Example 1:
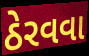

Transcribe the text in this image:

ઠેરવવા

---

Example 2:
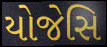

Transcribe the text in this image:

યોજેસિ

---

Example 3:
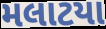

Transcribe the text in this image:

મલાટયા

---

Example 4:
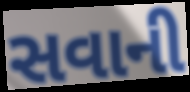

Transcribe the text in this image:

સવાની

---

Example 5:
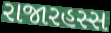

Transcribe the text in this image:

રાજારહસ્સ